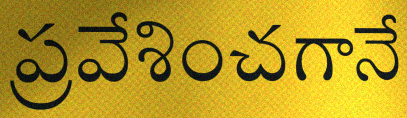
ప్రవేశించగానే